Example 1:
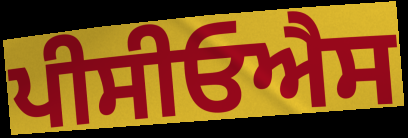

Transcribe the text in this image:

ਪੀਸੀਓਐਸ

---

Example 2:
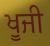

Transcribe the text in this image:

ਖੂਜੀ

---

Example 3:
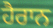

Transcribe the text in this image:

ਹੈਰਾਨ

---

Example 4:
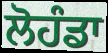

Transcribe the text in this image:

ਲੋਹੰਡਾ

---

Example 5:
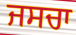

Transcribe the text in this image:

ਜਸਚਾ